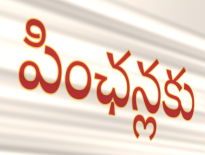
పింఛన్లకు